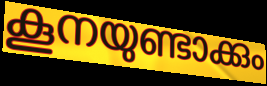
കൂനയുണ്ടാക്കും